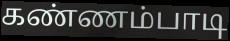
கண்ணம்பாடி